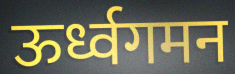
ऊर्ध्वगमन